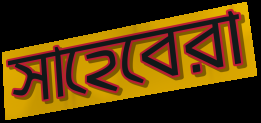
সাহেবেরা